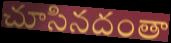
చూసినదంతా